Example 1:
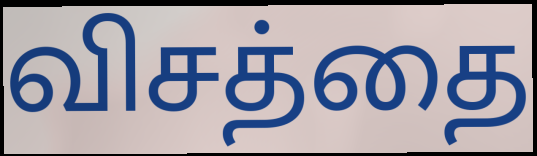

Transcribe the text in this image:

விசத்தை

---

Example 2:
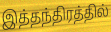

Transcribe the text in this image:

இத்தந்திரத்தில்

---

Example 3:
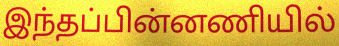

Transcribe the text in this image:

இந்தப்பின்னணியில்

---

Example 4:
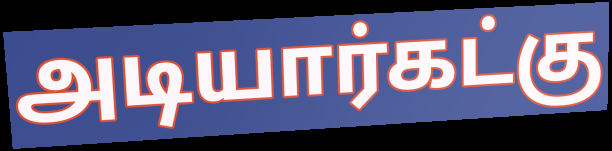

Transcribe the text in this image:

அடியார்கட்கு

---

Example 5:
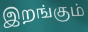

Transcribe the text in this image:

இறங்கும்